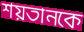
শয়তানকে